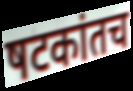
षटकांतच